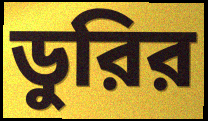
ডুরির